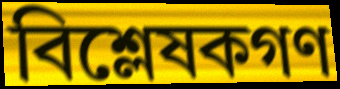
বিশ্লেষকগণ